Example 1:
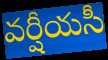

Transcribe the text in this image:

వర్షీయసీ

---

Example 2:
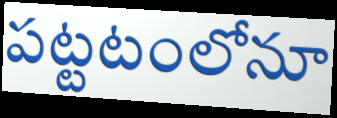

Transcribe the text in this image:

పట్టటంలోనూ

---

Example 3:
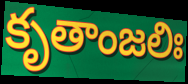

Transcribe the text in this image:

కృతాంజలిః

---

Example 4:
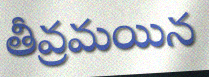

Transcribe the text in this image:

తీవ్రమయిన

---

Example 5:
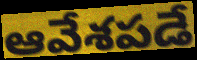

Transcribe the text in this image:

ఆవేశపడే